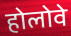
होलोवे